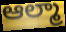
ఆల్మా